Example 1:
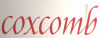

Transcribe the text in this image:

coxcomb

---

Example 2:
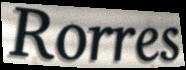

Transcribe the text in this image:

Rorres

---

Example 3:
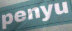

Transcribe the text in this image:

penyu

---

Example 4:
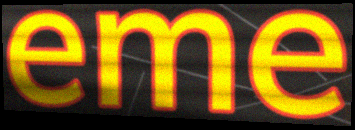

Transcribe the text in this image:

eme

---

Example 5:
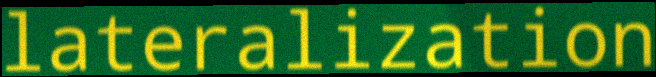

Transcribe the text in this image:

lateralization